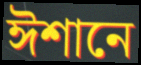
ঈশানে